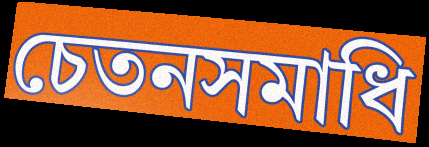
চেতনসমাধি